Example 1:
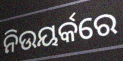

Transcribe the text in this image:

ନିଉୟର୍କରେ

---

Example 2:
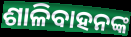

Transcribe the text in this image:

ଶାଳିବାହନଙ୍କ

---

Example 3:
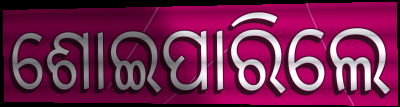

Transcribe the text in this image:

ଶୋଇପାରିଲେ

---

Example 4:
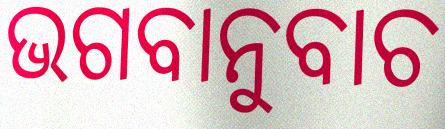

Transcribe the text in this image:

ଭଗବାନୁବାଚ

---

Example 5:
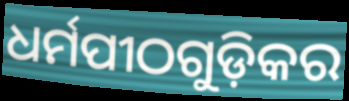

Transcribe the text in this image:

ଧର୍ମପୀଠଗୁଡ଼ିକର